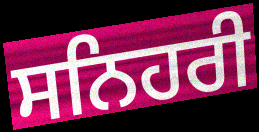
ਸਨਿਹਰੀ